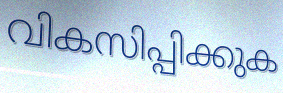
വികസിപ്പിക്കുക